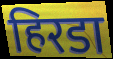
हिरडा